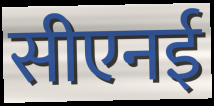
सीएनई